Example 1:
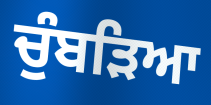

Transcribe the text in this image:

ਚੁੰਬੜਿਆ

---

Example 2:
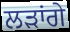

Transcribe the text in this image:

ਲੜਾਂਗੇ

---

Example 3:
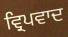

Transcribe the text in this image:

ਵ੍ਰਿਪਵਾਦ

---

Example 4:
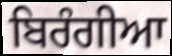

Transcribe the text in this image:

ਬਿਰੰਗੀਆ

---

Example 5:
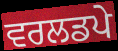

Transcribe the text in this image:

ਵਰਲਡਪੇ